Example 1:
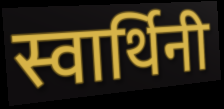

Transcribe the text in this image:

स्वार्थिनी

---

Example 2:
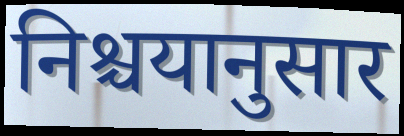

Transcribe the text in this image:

निश्चयानुसार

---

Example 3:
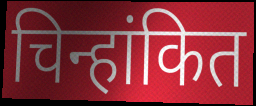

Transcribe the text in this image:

चिन्हांकित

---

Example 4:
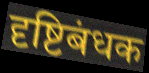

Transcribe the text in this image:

दृष्टिबंधक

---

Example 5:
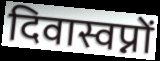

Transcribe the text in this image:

दिवास्वप्नों